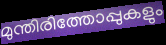
മുന്തിരിത്തോപ്പുകളും